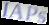
IAPs